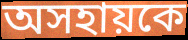
অসহায়কে